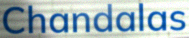
Chandalas